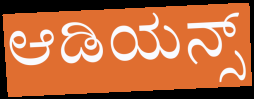
ಆಡಿಯನ್ಸ್